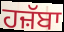
ਹਜ਼ੱਬਾ